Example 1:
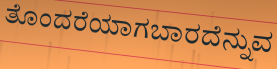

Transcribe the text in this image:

ತೊಂದರೆಯಾಗಬಾರದೆನ್ನುವ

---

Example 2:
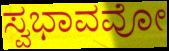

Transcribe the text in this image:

ಸ್ವಭಾವವೋ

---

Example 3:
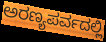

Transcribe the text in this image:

ಅರಣ್ಯಪರ್ವದಲ್ಲಿ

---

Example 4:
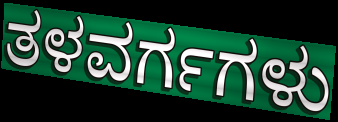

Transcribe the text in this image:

ತಳವರ್ಗಗಳು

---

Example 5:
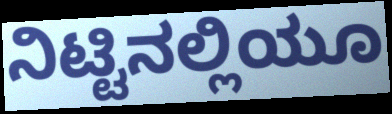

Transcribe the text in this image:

ನಿಟ್ಟಿನಲ್ಲಿಯೂ